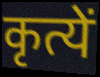
कृत्यें